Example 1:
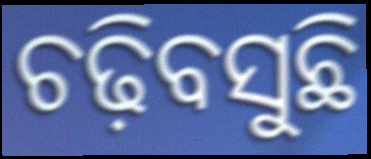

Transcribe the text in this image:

ଚଢ଼ିବସୁଛି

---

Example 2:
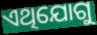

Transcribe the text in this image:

ଏଥିଯୋଗୁ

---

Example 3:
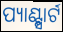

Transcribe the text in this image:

ପ୍ୟାଣ୍ଟ୍ସାର୍ଟ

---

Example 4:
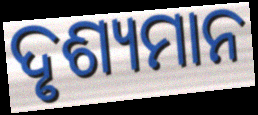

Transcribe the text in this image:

ଦୃଶ୍ୟମାନ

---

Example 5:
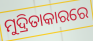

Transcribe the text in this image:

ମୁଦ୍ରିତାକାରରେ